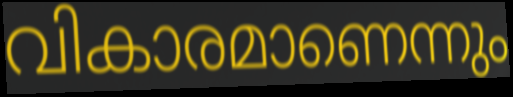
വികാരമാണെന്നും